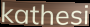
kathesi